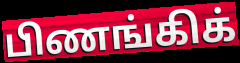
பிணங்கிக்